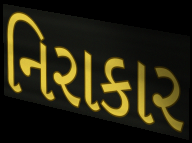
નિરાકાર